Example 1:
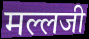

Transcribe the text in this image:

मल्लजी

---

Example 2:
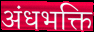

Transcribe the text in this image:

अंधभक्ति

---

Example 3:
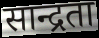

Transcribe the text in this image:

सान्द्रता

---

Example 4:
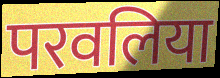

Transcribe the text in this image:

परवलिया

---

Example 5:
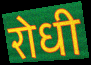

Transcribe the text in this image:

रोधी